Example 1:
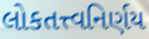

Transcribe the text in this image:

લોકતત્ત્વનિર્ણય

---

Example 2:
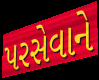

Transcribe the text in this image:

પરસેવાને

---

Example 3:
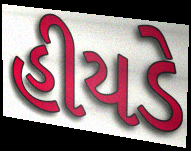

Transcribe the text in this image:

હીયડે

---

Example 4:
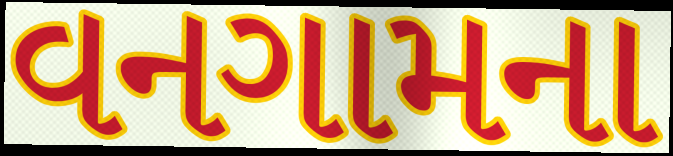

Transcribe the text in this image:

વનગામના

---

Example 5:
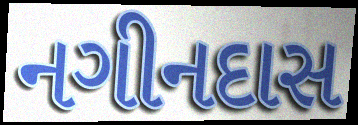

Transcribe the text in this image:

નગીનદાસ